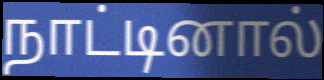
நாட்டினால்